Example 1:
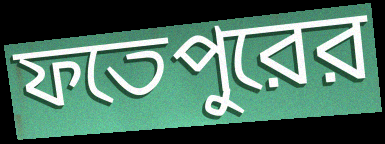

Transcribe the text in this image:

ফতেপুরের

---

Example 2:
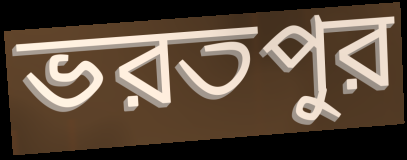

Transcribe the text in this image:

ভরতপুর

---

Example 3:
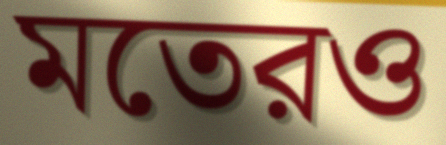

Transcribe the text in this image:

মতেরও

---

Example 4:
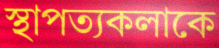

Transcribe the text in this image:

স্থাপত্যকলাকে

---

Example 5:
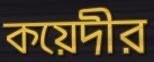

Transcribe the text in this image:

কয়েদীর